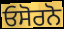
ਓਸੋਰਨੋ